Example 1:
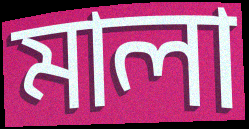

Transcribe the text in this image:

মালা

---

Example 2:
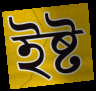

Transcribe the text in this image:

ইষ্ট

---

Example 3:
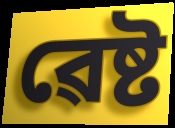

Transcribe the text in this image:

ৱেষ্ট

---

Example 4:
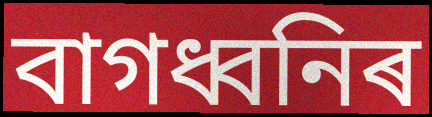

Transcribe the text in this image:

বাগধ্বনিৰ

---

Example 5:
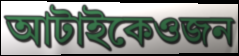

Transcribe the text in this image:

আটাইকেওজন